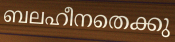
ബലഹീനതെക്കു